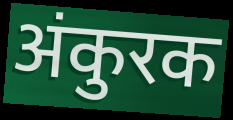
अंकुरक